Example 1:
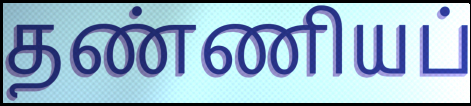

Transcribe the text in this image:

தண்ணியப்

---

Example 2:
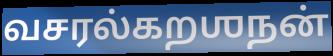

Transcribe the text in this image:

வசரல்கறஶநன்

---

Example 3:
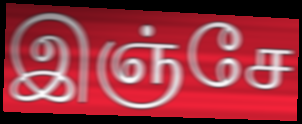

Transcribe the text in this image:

இஞ்சே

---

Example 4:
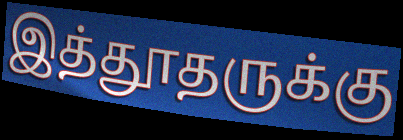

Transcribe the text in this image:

இத்தூதருக்கு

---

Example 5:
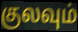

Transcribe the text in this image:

குலவும்